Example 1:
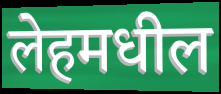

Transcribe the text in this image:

लेहमधील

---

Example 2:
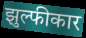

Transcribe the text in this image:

झुल्फीकार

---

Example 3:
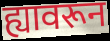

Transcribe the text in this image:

ह्यावरून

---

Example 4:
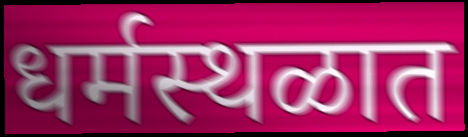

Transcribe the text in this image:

धर्मस्थळात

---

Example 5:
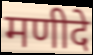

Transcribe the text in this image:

मणीदे